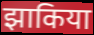
झाकिया